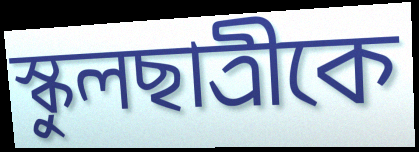
স্কুলছাত্রীকে